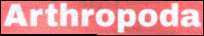
Arthropoda